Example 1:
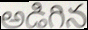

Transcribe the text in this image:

అడిగిన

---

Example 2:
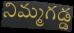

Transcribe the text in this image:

నిమ్మగడ్డ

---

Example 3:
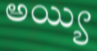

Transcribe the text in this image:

అయ్యి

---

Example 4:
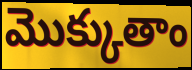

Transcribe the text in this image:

మొక్కుతాం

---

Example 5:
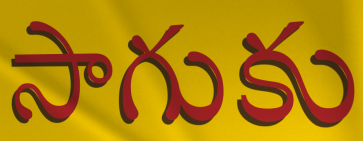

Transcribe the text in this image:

సాగుకు